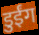
डुईंग